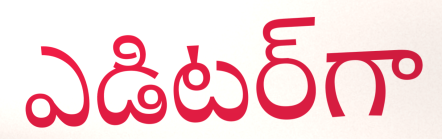
ఎడిటర్‌గా